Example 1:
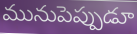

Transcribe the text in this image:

మునుపెప్పుడూ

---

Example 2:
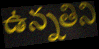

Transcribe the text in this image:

ఉన్నతిని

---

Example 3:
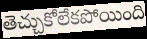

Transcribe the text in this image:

తెచ్చుకోలేకపోయింది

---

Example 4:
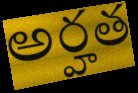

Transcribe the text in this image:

అర్హత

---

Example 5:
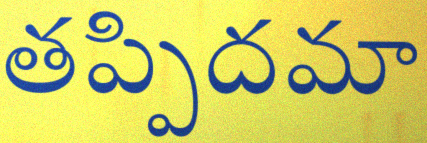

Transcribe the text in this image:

తప్పిదమా